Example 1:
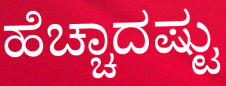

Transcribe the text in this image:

ಹೆಚ್ಚಾದಷ್ಟು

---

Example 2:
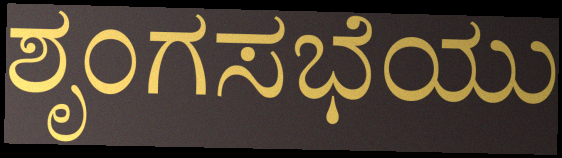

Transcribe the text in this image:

ಶೃಂಗಸಭೆಯು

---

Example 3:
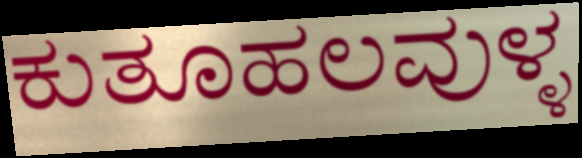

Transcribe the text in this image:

ಕುತೂಹಲವುಳ್ಳ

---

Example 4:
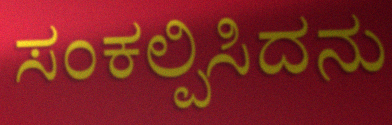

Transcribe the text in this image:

ಸಂಕಲ್ಪಿಸಿದನು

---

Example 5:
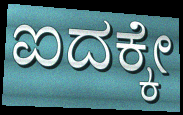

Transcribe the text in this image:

ಐದಕ್ಕೇ